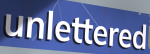
unlettered